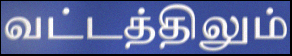
வட்டத்திலும்